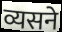
व्यसने